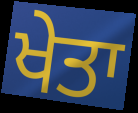
ਖੇਤਾ